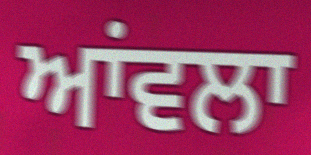
ਆਂਵਲਾ